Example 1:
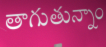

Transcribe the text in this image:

తాగుతున్నాం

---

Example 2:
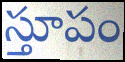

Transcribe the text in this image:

స్తూపం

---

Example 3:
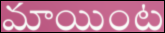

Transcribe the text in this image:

మాయింట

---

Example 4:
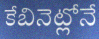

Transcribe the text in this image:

కేబినెట్లోనే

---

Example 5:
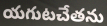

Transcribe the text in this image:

యగుటచేతను